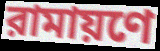
রামায়ণে